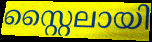
സ്റ്റൈലായി